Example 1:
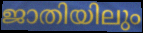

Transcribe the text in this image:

ജാതിയിലും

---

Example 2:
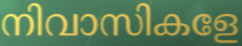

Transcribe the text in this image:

നിവാസികളേ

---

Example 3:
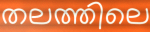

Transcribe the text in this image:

തലത്തിലെ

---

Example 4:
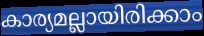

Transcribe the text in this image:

കാര്യമല്ലായിരിക്കാം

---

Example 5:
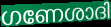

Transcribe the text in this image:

ഗണേശാദി